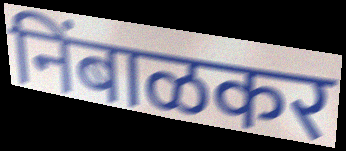
निंबाळकर